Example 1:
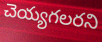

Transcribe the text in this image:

చెయ్యగలరని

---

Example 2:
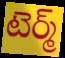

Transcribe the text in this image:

టెర్మ్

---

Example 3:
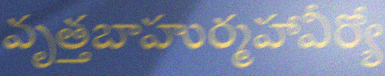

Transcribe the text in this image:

వృత్తబాహుర్మహావీర్యో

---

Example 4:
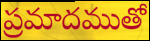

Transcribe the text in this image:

ప్రమాదముతో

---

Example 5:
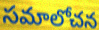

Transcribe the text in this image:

సమాలోచన